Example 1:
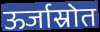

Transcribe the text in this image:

ऊर्जास्रोत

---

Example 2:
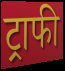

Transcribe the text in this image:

ट्राफी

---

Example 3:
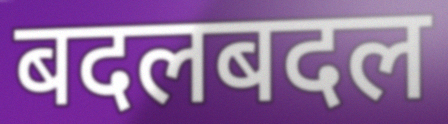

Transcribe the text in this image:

बदलबदल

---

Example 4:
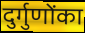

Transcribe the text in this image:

दुर्गुणोंका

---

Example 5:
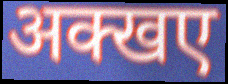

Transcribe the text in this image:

अक्खए